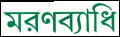
মরণব্যাধি